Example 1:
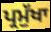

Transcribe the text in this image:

ਪ੍ਰਮੁੱਖਾ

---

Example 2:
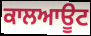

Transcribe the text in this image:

ਕਾਲਆਊਟ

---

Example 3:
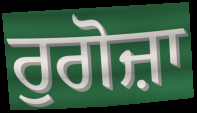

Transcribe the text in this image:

ਰੁਗੋਜ਼ਾ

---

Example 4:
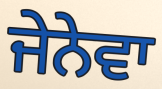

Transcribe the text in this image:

ਜੇਨੇਵਾ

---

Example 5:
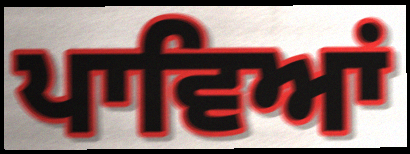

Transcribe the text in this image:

ਪਾਵਿਆਂ